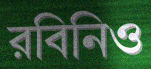
রবিনিও